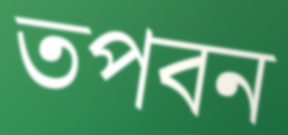
তপবন